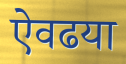
ऐवढया